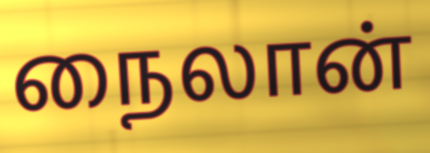
நைலான்